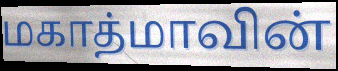
மகாத்மாவின்